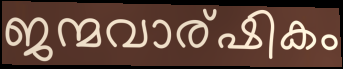
ജന്മവാര്ഷികം